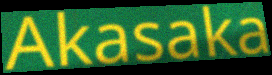
Akasaka